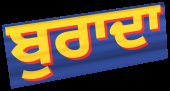
ਬੁਰਾਦਾ